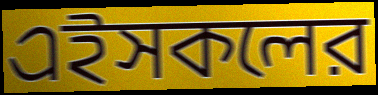
এইসকলের